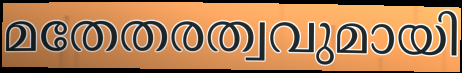
മതേതരത്വവുമായി